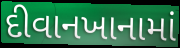
દીવાનખાનામાં